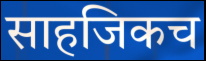
साहजिकच